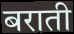
बराती